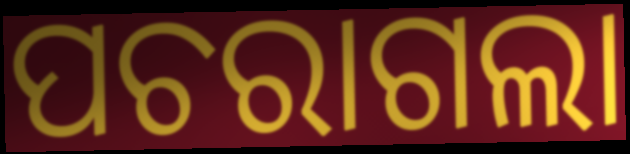
ପଚରାଗଲା